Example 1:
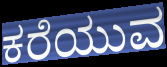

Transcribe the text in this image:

ಕರೆಯುವ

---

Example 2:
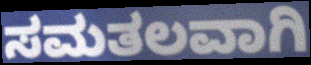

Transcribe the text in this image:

ಸಮತಲವಾಗಿ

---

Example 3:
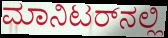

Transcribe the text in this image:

ಮಾನಿಟರ್‌ನಲ್ಲಿ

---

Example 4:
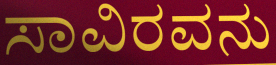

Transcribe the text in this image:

ಸಾವಿರವನು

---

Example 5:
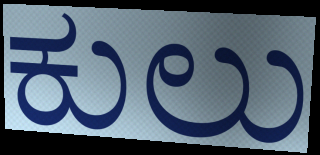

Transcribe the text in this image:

ಕುಲು